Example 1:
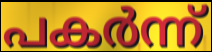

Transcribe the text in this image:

പകർന്ന്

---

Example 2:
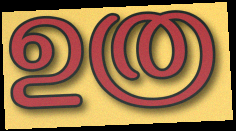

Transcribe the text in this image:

ഉത്ര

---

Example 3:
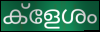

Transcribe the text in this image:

ക്ളേശം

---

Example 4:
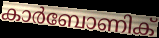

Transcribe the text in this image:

കാർബോണിക്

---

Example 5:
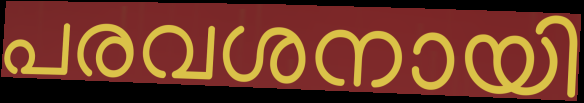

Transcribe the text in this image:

പരവശനായി